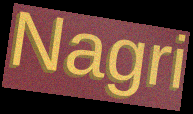
Nagri